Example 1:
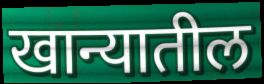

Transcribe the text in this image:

खान्यातील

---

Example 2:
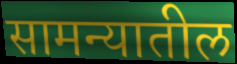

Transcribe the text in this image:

सामन्यातील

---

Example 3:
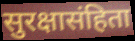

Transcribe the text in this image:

सुरक्षासंहिता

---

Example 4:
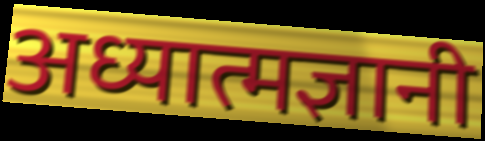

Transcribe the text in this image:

अध्यात्मज्ञानी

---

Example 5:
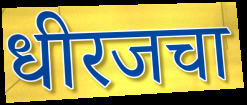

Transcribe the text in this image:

धीरजचा